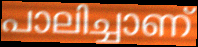
പാലിച്ചാണ്